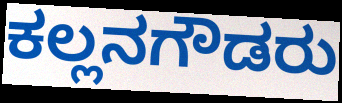
ಕಲ್ಲನಗೌಡರು